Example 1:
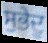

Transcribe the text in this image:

ਸੁਭੇਦੂ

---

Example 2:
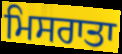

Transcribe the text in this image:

ਮਿਸਰਾਤਾ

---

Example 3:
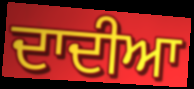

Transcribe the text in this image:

ਦਾਦੀਆ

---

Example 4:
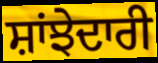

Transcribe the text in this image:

ਸ਼ਾਂਝੇਦਾਰੀ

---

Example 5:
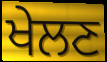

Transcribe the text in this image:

ਖੇਲਣ